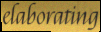
elaborating